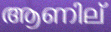
ആണില്